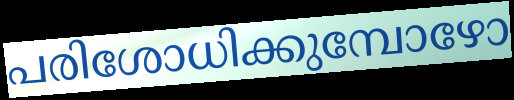
പരിശോധിക്കുമ്പോഴോ